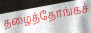
தழைத்தோங்கச்